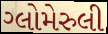
ગ્લોમેરુલી